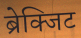
ब्रेक्जिट